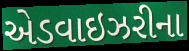
એડવાઇઝરીના